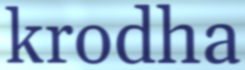
krodha